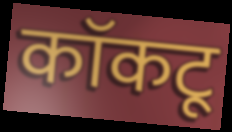
कॉकटू